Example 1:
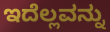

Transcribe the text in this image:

ಇದೆಲ್ಲವನ್ನು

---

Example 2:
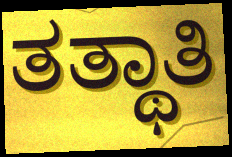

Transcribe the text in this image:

ತತ್ಥಾತಿ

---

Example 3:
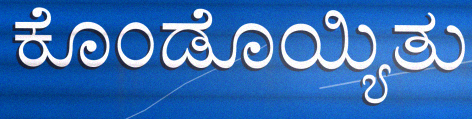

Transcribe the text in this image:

ಕೊಂಡೊಯ್ಯಿತು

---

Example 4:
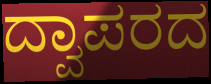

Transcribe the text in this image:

ದ್ವಾಪರದ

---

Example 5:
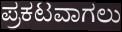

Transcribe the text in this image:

ಪ್ರಕಟವಾಗಲು